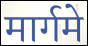
मार्गमे